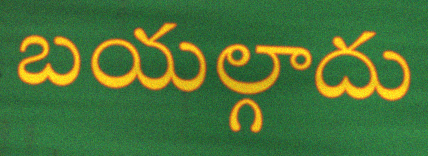
బయల్గాదు